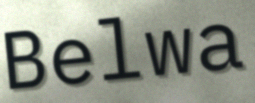
Belwa